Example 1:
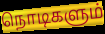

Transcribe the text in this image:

நொடிகளும்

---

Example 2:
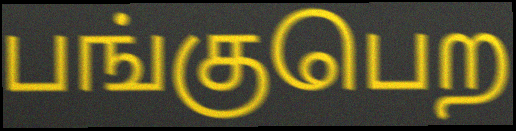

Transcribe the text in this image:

பங்குபெற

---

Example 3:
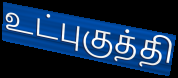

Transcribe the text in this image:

உட்புகுத்தி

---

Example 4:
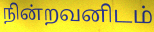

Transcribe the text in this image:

நின்றவனிடம்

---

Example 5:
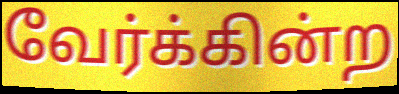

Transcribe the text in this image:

வேர்க்கின்ற